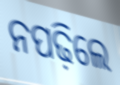
ନପଢ଼ିଲେ